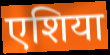
एशिया